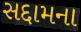
સદ્દામના